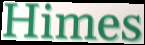
Himes